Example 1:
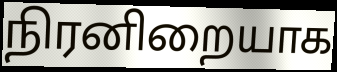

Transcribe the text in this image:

நிரனிறையாக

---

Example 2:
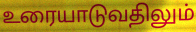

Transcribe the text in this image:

உரையாடுவதிலும்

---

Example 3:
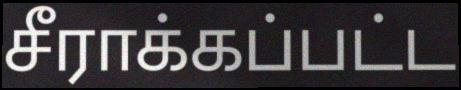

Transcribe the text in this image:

சீராக்கப்பட்ட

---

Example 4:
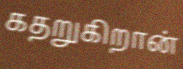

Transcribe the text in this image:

கதறுகிறான்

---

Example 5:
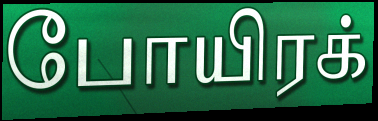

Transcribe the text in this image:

போயிரக்